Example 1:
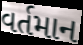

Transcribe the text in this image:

વર્તમાન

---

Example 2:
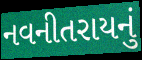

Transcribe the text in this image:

નવનીતરાયનું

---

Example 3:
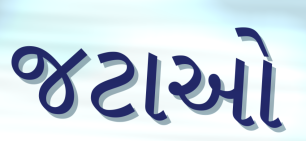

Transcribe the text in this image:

જટાઓ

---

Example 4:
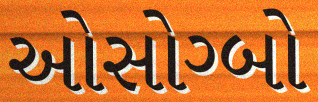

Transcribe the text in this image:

ઓસોગ્બો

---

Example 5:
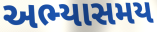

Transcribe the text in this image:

અભ્યાસમય